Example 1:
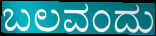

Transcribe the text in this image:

ಬಲವಂದು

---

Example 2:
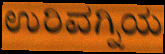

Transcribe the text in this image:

ಉರಿವಗ್ನಿಯ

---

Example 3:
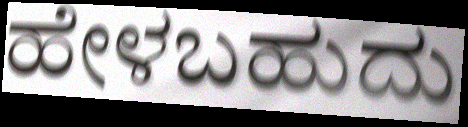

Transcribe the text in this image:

ಹೇಳಬಹುದು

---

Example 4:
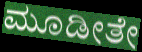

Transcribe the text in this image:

ಮೂಡೀತೇ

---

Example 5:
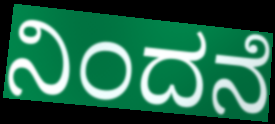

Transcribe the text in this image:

ನಿಂದನೆ